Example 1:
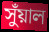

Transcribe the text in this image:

সুঁয়াল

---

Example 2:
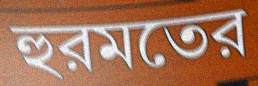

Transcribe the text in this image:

হুরমতের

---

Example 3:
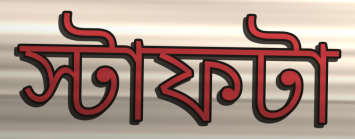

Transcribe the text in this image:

স্টাফটা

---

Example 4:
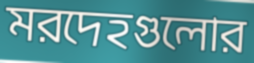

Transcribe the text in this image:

মরদেহগুলোর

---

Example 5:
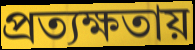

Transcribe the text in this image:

প্রত্যক্ষতায়